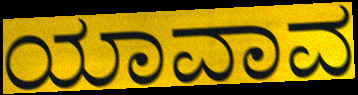
ಯಾವಾವ